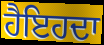
ਹੈਇਹਦਾ